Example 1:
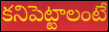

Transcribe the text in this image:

కనిపెట్టాలంటే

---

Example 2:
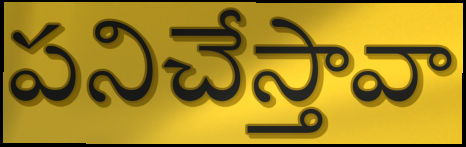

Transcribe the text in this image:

పనిచేస్తావా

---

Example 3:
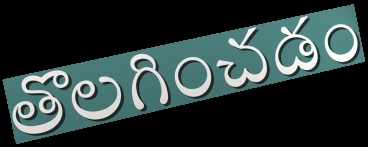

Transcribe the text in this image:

తొలగించడం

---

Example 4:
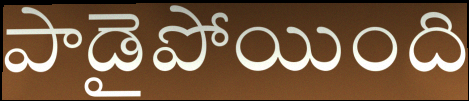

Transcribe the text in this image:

పాడైపోయింది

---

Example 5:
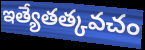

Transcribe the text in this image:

ఇత్యేతత్కవచం